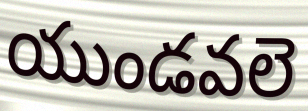
యుండవలె